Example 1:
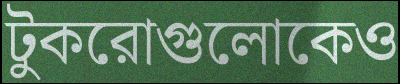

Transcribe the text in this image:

টুকরোগুলোকেও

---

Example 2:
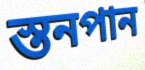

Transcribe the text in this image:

স্তনপান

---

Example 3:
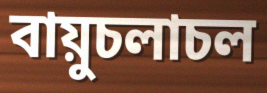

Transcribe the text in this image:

বায়ুচলাচল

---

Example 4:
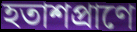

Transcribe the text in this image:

হতাশপ্রাণে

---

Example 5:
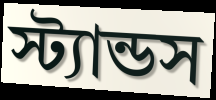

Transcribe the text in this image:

স্ট্যান্ডস